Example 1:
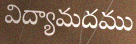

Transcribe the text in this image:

విద్యామదము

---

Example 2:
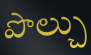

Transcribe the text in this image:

పొల్చు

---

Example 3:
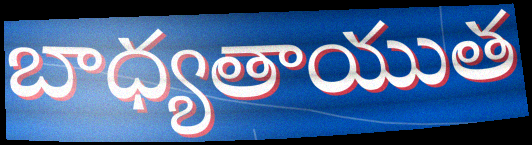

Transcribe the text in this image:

బాధ్యతాయుత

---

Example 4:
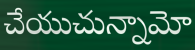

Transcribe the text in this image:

చేయుచున్నామో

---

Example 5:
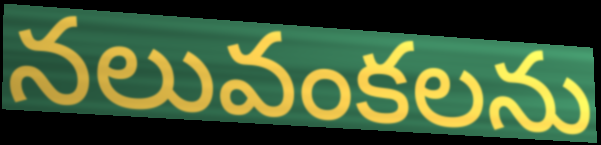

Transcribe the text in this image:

నలువంకలను